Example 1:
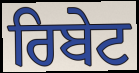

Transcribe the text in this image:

ਰਿਬੇਟ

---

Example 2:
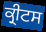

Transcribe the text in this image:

ਕ੍ਰੀਟਸ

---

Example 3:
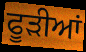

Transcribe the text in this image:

ਫੂੜੀਆਂ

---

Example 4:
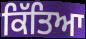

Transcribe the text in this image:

ਕਿੱਤਿਆ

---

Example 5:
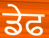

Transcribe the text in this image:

ਡੇਫ